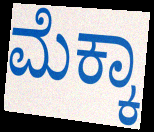
ಮೆಕ್ಕಾ